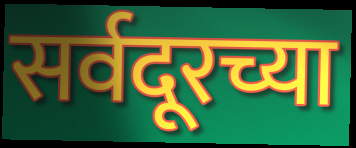
सर्वदूरच्या